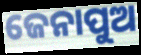
ଜେନାପୁଅ